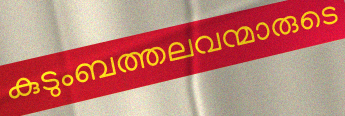
കുടുംബത്തലവന്മാരുടെ